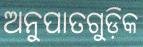
ଅନୁପାତଗୁଡ଼ିକ